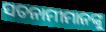
ସତନାମୀମାନଙ୍କୁ